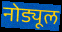
नोड्यूल